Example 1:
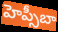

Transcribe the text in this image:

హెప్సీబా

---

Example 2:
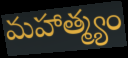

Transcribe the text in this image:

మహాత్మ్యం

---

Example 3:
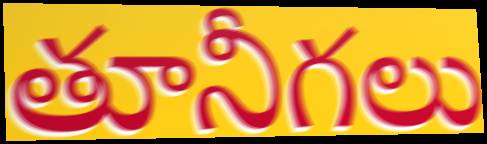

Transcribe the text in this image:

తూనీగలు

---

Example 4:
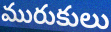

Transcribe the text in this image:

మురుకులు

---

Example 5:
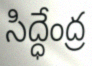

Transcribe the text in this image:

సిద్ధేంద్ర